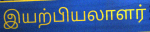
இயற்பியலாளர்